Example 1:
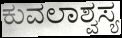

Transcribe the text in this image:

ಕುವಲಾಶ್ವಸ್ಯ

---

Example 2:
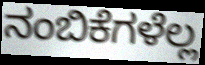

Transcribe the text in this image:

ನಂಬಿಕೆಗಳೆಲ್ಲ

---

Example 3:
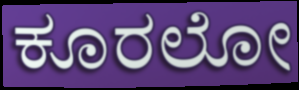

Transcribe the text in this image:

ಕೂರಲೋ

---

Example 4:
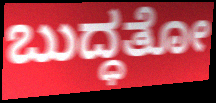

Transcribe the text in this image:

ಬುದ್ಧತೋ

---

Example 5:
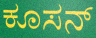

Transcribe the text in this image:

ಕೂಸನ್